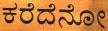
ಕರೆದೆನೋ